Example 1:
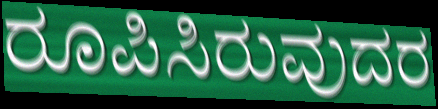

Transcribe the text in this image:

ರೂಪಿಸಿರುವುದರ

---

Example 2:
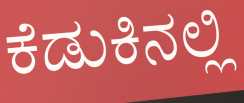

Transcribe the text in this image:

ಕೆಡುಕಿನಲ್ಲಿ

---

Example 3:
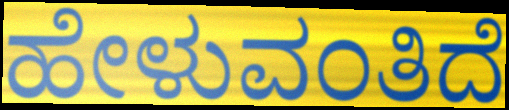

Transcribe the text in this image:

ಹೇಳುವಂತಿದೆ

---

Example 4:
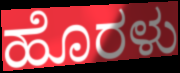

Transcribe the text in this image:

ಹೊರಳು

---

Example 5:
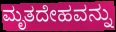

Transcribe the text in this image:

ಮೃತದೇಹವನ್ನು